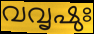
വവൃഷുഃ